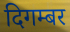
दिगम्बर